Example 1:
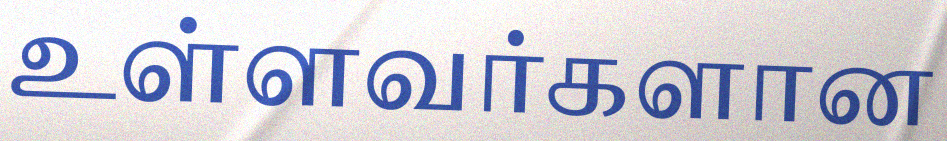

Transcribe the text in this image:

உள்ளவர்களான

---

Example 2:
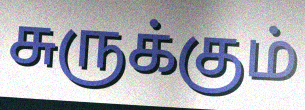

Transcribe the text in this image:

சுருக்கும்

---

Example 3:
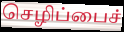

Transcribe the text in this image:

செழிப்பைச்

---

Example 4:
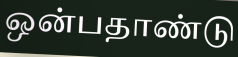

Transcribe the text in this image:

ஒன்பதாண்டு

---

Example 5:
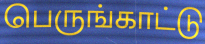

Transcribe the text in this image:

பெருங்காட்டு